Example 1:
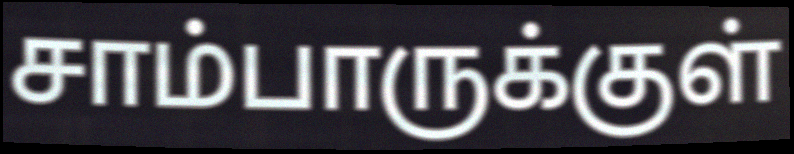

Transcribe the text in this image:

சாம்பாருக்குள்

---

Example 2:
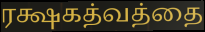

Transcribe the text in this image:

ரக்ஷகத்வத்தை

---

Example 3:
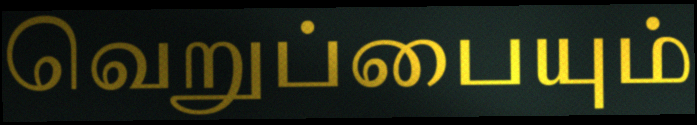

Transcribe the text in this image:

வெறுப்பையும்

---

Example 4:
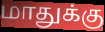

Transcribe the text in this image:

மாதுக்கு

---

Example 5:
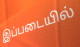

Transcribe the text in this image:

இப்படையில்